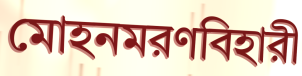
মোহনমরণবিহারী